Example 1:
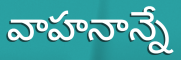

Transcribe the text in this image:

వాహనాన్నే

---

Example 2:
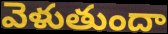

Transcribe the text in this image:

వెళుతుందా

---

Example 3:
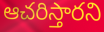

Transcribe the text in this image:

ఆచరిస్తారని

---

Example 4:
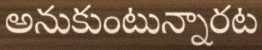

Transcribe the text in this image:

అనుకుంటున్నారట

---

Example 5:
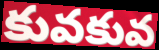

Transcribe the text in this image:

కువకువ